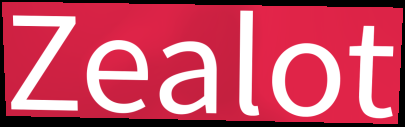
Zealot